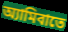
অ্যামিবাতে